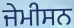
ਜੇਮੀਸਨ